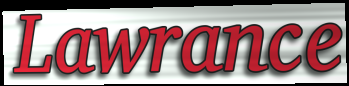
Lawrance